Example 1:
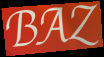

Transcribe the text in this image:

BAZ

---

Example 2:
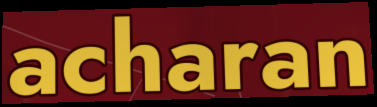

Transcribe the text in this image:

acharan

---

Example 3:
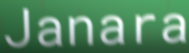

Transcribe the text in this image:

Janara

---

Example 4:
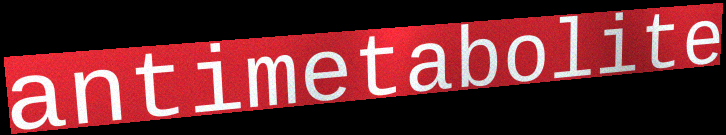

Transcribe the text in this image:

antimetabolite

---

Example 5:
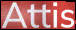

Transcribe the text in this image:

Attis